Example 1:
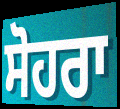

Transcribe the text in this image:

ਸੋਹਰਾ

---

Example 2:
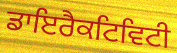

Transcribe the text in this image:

ਡਾਇਰੈਕਟਿਵਿਟੀ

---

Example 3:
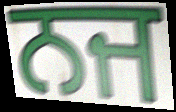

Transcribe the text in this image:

ਨਜ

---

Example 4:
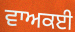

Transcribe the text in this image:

ਵਾਅਕਈ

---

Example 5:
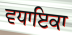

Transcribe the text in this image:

ਵਧਾਇਕਾ